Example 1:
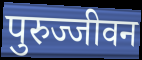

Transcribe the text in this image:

पुरुज्जीवन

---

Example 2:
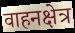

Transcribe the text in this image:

वाहनक्षेत्र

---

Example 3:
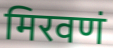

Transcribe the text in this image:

मिरवणं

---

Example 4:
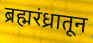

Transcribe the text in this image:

ब्रह्मरंध्रातून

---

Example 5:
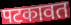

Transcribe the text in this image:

पटकावत